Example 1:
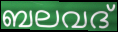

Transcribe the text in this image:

ബലവദ്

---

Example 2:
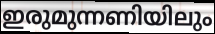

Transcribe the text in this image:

ഇരുമുന്നണിയിലും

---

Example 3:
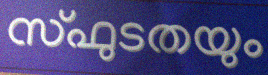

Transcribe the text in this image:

സ്ഫുടതയും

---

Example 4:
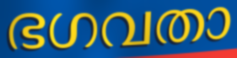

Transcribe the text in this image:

ഭഗവതാ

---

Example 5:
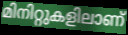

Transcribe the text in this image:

മിനിറ്റുകളിലാണ്